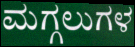
ಮಗ್ಗಲುಗಳ